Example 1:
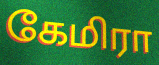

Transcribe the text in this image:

கேமிரா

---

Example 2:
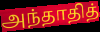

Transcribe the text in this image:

அந்தாதித்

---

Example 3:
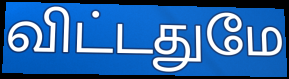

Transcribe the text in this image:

விட்டதுமே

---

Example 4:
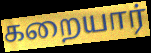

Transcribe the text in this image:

கறையார்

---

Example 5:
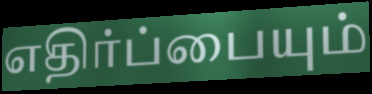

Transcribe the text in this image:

எதிர்ப்பையும்